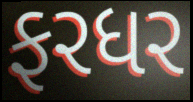
ફરધર